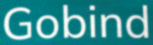
Gobind